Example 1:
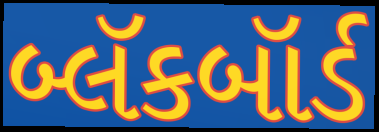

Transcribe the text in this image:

બ્લૅકબૉર્ડ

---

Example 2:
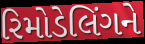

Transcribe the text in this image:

રિમોડેલિંગને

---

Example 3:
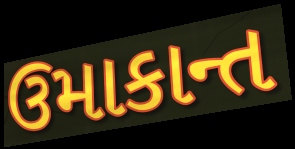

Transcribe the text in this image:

ઉમાકાન્ત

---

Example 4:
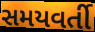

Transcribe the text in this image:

સમયવર્તી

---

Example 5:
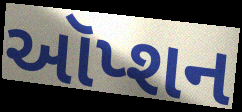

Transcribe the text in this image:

ઑપ્શન